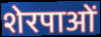
शेरपाओं